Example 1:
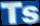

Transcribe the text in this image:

Ts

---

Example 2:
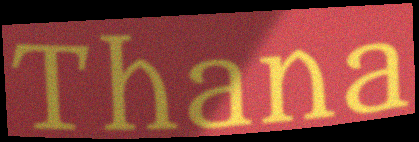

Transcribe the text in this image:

Thana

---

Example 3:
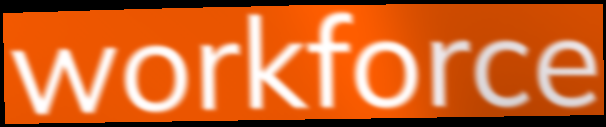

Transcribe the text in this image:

workforce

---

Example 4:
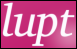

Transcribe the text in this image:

lupt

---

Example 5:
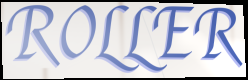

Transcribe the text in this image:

ROLLER